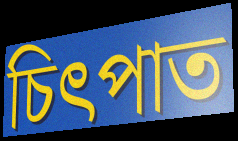
চিৎপাত